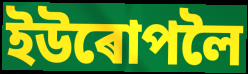
ইউৰোপলৈ